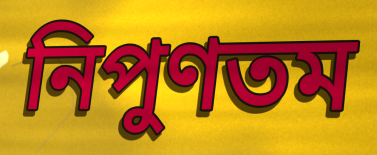
নিপুণতম